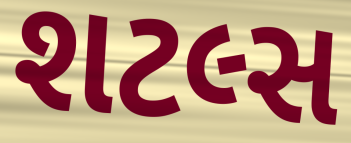
શટલ્સ